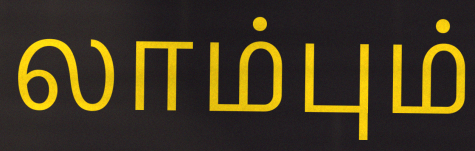
லாம்பும்